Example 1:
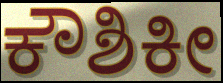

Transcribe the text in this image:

ಕೌಶಿಕೀ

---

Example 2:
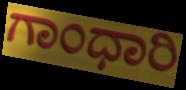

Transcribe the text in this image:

ಗಾಂಧಾರಿ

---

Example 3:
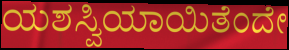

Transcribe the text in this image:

ಯಶಸ್ವಿಯಾಯಿತೆಂದೇ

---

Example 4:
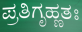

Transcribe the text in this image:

ಪ್ರತಿಗೃಹ್ಣತಃ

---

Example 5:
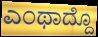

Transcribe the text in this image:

ಎಂಥಾದ್ದೊ